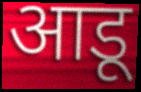
आडू